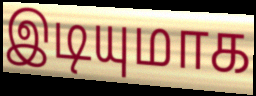
இடியுமாக